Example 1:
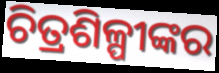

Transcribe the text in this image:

ଚିତ୍ରଶିଳ୍ପୀଙ୍କର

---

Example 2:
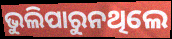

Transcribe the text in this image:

ଭୁଲିପାରୁନଥିଲେ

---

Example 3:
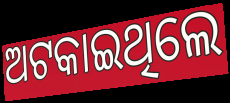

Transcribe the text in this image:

ଅଟକାଇଥିଲେ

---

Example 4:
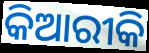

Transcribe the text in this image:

କିଆରୀକି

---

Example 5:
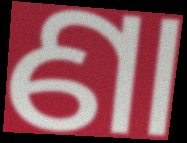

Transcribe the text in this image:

ଣା